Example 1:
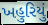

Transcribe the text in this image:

ખહુરિયું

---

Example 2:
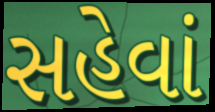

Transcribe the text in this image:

સહેવાં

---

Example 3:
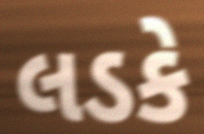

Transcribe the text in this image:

લડકે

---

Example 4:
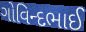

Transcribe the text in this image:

ગોવિન્દભાઈ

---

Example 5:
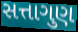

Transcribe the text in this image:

સત્તાગુણ